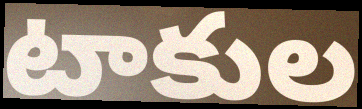
టాకుల